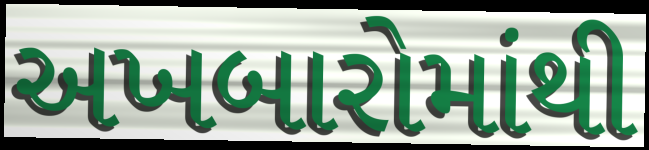
અખબારોમાંથી